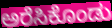
ಅರೆಸಿಕೊಂಡು